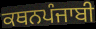
ਕਥਨਪੰਜਾਬੀ